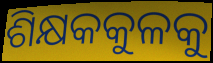
ଶିକ୍ଷକକୁଳକୁ